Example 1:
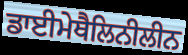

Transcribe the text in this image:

ਡਾਈਮੇਥੈਲਿਨੀਲੀਨ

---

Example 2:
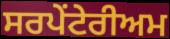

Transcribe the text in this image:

ਸਰਪੇਂਟੇਰੀਅਮ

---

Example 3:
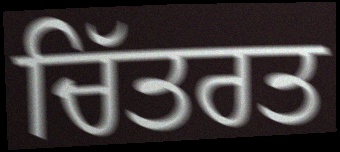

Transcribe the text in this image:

ਚਿੱਤਰਤ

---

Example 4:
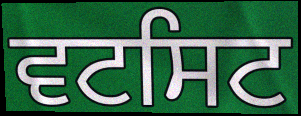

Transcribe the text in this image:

ਵਟਸਿਟ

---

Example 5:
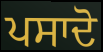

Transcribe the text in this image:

ਪਸਾਦੋ